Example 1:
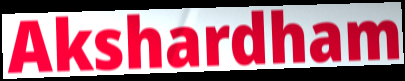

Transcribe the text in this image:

Akshardham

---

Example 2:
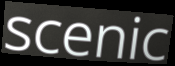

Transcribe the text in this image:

scenic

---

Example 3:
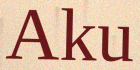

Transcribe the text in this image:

Aku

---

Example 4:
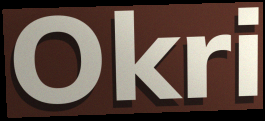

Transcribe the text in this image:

Okri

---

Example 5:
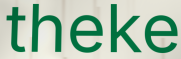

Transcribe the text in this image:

theke